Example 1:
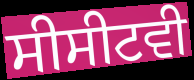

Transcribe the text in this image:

ਸੀਸੀਟਵੀ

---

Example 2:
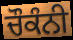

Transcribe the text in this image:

ਚੌਕੰਨੀ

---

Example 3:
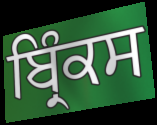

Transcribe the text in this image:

ਬ੍ਰਿੰਕਸ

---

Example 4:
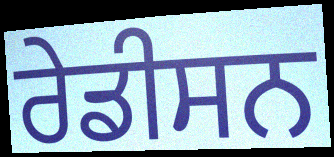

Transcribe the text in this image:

ਰੇਡੀਸਨ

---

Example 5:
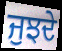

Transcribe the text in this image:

ਜੁਝਦੇ